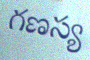
గణస్య